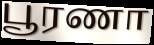
பூரணா